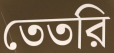
তেতরি